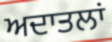
ਅਦਾਤਲਾਂ